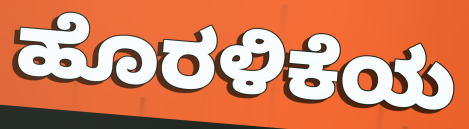
ಹೊರಳಿಕೆಯ